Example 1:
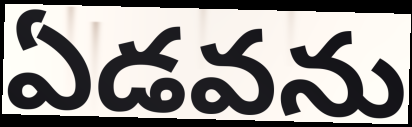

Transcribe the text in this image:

ఏడవను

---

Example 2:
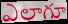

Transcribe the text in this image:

ఎలాగూ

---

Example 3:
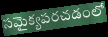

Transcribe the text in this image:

సమైక్యపరచడంలో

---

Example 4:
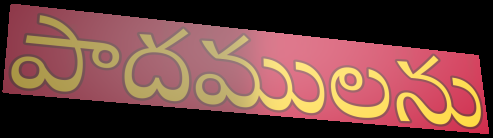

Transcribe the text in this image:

పాదములను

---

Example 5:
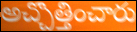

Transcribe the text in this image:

అచ్చొత్తించారు